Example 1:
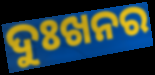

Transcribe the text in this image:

ଦୁଃଖନର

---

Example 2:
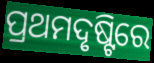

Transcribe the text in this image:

ପ୍ରଥମଦୃଷ୍ଟିରେ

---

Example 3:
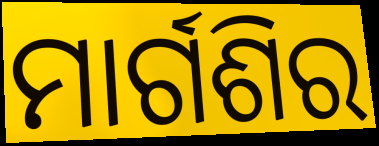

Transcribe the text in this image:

ମାର୍ଗଶିର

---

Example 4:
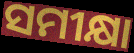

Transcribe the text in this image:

ସମୀକ୍ଷା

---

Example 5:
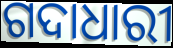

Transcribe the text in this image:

ଗଦାଧାରୀ